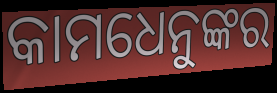
କାମଧେନୁଙ୍କର